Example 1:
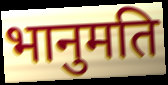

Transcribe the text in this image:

भानुमति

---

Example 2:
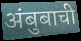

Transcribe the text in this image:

अंबुबाची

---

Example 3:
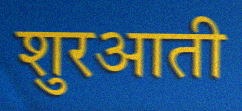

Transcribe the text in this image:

शुरआती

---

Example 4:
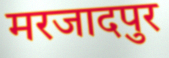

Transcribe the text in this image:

मरजादपुर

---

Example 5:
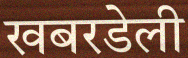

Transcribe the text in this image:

खबरडेली